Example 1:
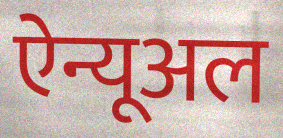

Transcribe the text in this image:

ऐन्यूअल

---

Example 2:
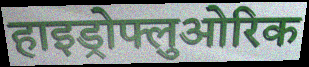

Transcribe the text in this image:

हाइड्रोफ्लुओरिक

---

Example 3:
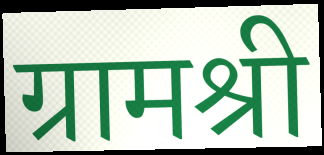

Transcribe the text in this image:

ग्रामश्री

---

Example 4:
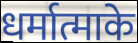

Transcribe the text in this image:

धर्मात्माके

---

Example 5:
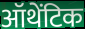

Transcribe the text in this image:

ऑथेंटिक